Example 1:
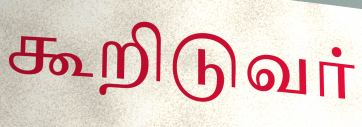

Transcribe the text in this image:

கூறிடுவர்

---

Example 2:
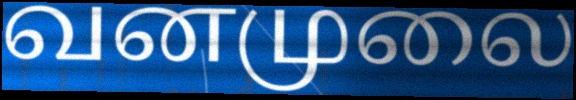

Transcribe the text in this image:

வனமுலை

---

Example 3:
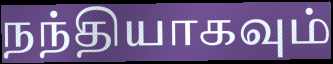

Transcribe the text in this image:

நந்தியாகவும்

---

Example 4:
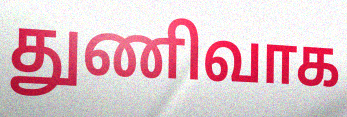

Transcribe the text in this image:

துணிவாக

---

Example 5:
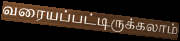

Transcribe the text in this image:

வரையப்பட்டிருக்கலாம்